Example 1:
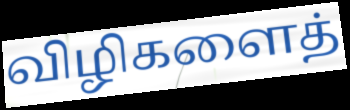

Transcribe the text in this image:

விழிகளைத்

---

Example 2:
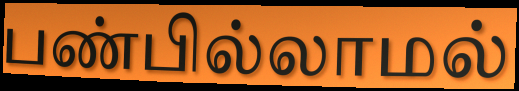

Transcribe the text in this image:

பண்பில்லாமல்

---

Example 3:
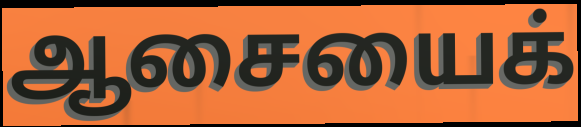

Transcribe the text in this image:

ஆசையைக்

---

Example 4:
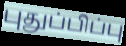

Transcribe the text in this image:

புதுப்பிப்பு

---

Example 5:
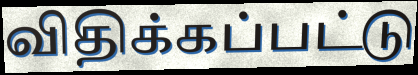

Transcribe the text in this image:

விதிக்கப்பட்டு